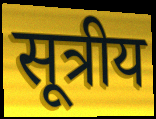
सूत्रीय